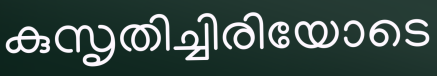
കുസൃതിച്ചിരിയോടെ